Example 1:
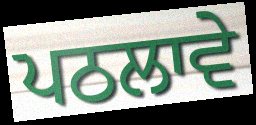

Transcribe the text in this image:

ਪਠਲਾਵੇ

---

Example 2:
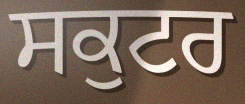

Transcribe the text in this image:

ਸਕੁਟਰ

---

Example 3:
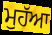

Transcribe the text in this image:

ਮੁਹੱਆ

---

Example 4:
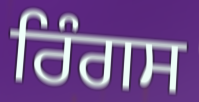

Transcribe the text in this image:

ਰਿੰਗਸ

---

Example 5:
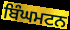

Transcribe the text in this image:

ਬਿੰਘਮਟਨ